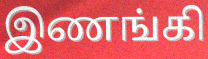
இணங்கி